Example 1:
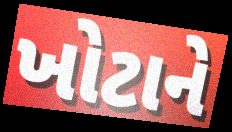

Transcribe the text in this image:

ખોટાને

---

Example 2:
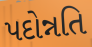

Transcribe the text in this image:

પદોન્નતિ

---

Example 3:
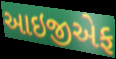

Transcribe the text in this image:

આઇજીએફ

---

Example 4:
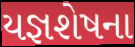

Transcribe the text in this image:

યજ્ઞશેષના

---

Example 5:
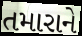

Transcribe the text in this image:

તમારાને